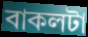
বাকলটা